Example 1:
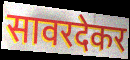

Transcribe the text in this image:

सावरदेकर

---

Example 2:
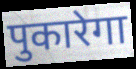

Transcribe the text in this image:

पुकारेगा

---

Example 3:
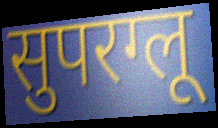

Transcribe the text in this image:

सुपरग्लू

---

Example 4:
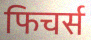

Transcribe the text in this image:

फिचर्स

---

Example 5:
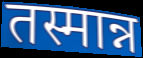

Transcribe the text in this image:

तस्मान्न